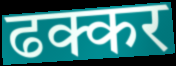
ढक्कर